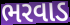
ભરવાડ